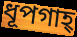
ধূপগাহ্